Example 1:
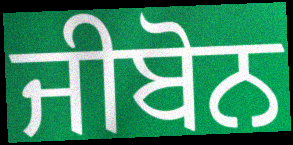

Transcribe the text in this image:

ਜੀਬੋਨ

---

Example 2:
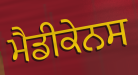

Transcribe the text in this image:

ਮੈਡੀਕੇਨਸ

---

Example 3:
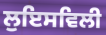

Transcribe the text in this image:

ਲੁਇਸਵਿਲੀ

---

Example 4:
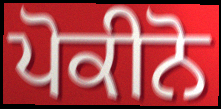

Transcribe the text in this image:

ਪੋਕੀਨੋ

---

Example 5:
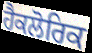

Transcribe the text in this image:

ਹੈਕਲੋਰਿਕ